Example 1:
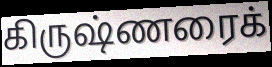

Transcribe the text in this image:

கிருஷ்ணரைக்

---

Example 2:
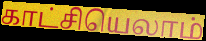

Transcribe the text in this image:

காட்சியெலாம்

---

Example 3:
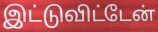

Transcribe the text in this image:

இட்டுவிட்டேன்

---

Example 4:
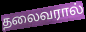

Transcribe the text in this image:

தலைவரால்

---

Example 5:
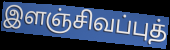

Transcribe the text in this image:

இளஞ்சிவப்புத்